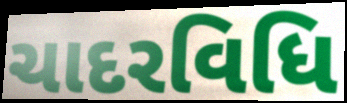
ચાદરવિધિ